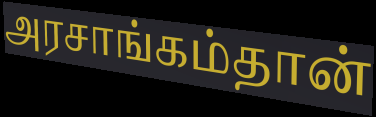
அரசாங்கம்தான்